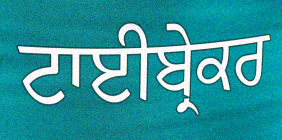
ਟਾਈਬ੍ਰੇਕਰ